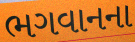
ભગવાનના